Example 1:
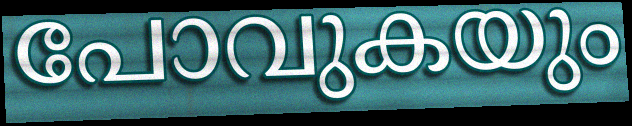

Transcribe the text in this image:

പോവുകയും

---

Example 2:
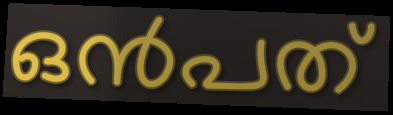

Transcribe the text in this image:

ഒൻപത്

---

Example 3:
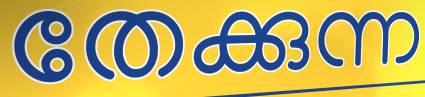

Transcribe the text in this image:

തേക്കുന്ന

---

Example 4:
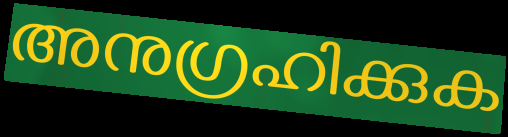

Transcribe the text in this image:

അനുഗ്രഹിക്കുക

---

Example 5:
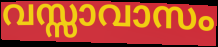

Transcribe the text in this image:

വസ്സാവാസം